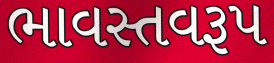
ભાવસ્તવરૂપ